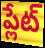
ప్లేట్